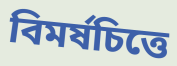
বিমর্ষচিত্তে